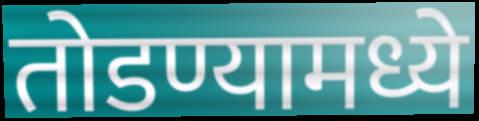
तोडण्यामध्ये